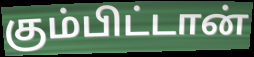
கும்பிட்டான்